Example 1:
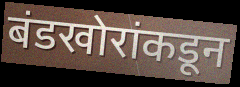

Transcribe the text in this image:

बंडखोरांकडून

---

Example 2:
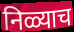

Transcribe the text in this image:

निळ्याच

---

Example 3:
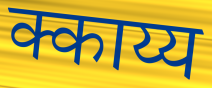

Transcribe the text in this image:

क्काय्य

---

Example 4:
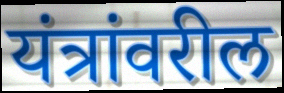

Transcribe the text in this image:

यंत्रांवरील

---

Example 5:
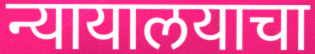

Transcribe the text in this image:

न्यायालयाचा